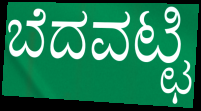
ಬೆದವಟ್ಟಿ